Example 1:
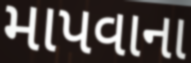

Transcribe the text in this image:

માપવાના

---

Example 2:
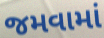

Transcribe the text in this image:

જમવામાં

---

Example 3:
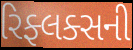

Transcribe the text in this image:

રિફ્લક્સની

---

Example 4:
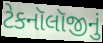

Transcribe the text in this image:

ટેકનૉલૉજીનું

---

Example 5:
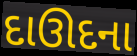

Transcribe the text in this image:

દાઊદના